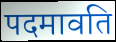
पदमावति